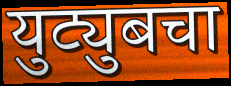
युट्युबचा